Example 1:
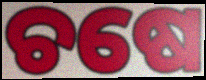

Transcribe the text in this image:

ଚଷେ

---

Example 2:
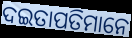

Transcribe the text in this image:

ଦଇତାପତିମାନେ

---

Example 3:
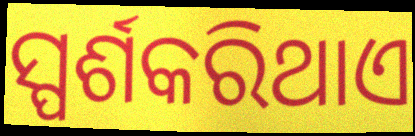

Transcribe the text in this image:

ସ୍ପର୍ଶକରିଥାଏ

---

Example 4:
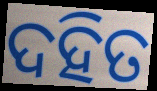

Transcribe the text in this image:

ଦହିତ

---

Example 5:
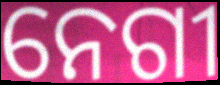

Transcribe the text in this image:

ନେଗୀ